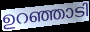
ഉറഞ്ഞാടി